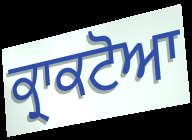
ਕ੍ਰਾਕਟੋਆ